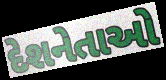
દેશનેતાઓ